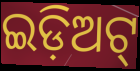
ଇଡ଼ିଅଟ୍